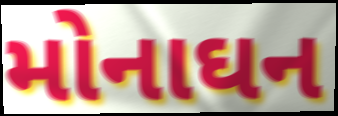
મોનાઘન